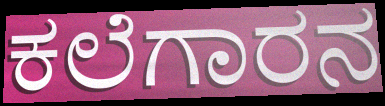
ಕಲೆಗಾರನ